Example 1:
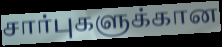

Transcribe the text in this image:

சார்புகளுக்கான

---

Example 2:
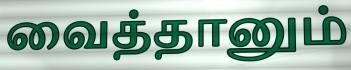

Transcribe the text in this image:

வைத்தானும்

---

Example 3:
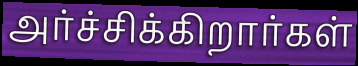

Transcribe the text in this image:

அர்ச்சிக்கிறார்கள்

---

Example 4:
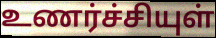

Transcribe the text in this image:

உணர்ச்சியுள்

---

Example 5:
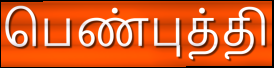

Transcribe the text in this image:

பெண்புத்தி